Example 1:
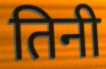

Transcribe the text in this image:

तिनी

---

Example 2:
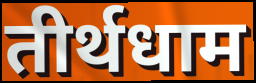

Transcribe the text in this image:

तीर्थधाम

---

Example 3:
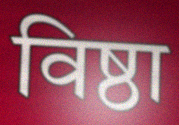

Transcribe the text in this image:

विष्ठा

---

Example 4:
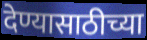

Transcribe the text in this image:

देण्यासाठीच्या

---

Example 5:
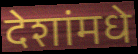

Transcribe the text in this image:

देशांमधे